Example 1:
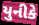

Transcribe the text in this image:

યુનીકે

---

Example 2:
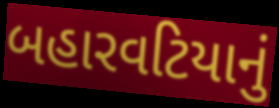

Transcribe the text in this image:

બહારવટિયાનું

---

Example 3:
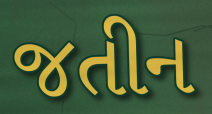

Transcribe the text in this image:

જતીન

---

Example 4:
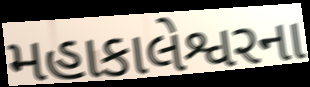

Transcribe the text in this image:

મહાકાલેશ્વરના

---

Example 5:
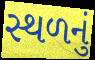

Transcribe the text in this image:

સ્થળનું